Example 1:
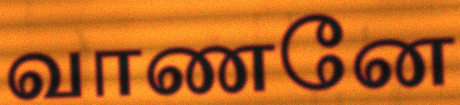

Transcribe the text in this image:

வாணனே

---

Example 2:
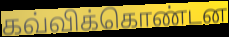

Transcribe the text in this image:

கவ்விக்கொண்டன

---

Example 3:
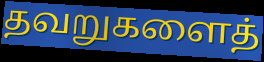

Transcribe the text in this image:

தவறுகளைத்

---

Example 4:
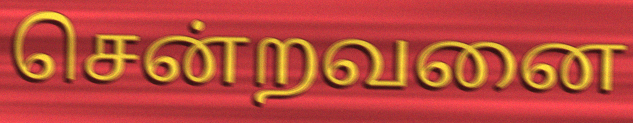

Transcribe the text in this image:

சென்றவனை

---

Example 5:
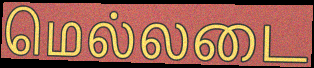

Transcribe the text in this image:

மெல்லடை